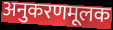
अनुकरणमूलक